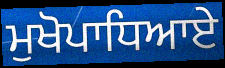
ਮੁਖੋਪਾਧਿਆਏ